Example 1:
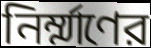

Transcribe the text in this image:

নির্ম্মাণের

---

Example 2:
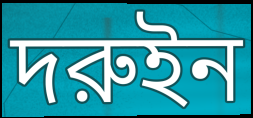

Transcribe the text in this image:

দরুইন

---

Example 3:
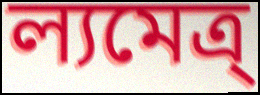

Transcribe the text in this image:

ল্যমেত্র্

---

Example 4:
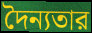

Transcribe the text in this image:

দৈন্যতার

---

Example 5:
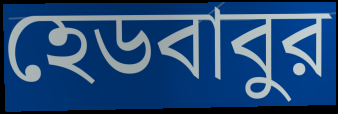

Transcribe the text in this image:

হেডবাবুর